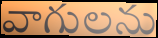
వాగులను